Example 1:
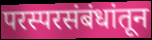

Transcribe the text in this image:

परस्परसंबंधांतून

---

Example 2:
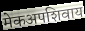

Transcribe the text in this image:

मेकअपशिवाय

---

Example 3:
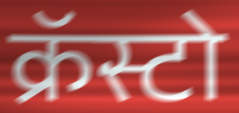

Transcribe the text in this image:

क्रॅस्टो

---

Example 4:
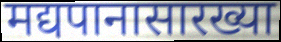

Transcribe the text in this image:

मद्यपानासारख्या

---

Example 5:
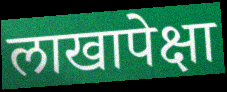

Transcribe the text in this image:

लाखापेक्षा